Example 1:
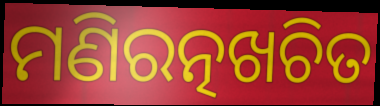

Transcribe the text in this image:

ମଣିରତ୍ନଖଚିତ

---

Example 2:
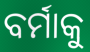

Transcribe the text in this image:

ବର୍ମାକୁ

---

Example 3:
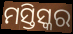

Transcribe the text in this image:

ମସ୍ତିସ୍କର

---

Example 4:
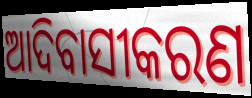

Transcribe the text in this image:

ଆଦିବାସୀକରଣ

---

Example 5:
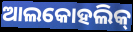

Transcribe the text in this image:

ଆଲକୋହଲିକ୍